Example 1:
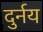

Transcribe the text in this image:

दुर्नय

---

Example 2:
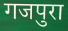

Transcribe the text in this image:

गजपुरा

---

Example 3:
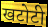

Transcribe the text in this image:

खटोटी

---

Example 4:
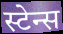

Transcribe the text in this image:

स्टेन्स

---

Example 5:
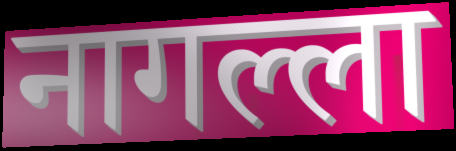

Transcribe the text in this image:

नागल्ला